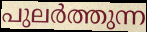
പുലർത്തുന്ന